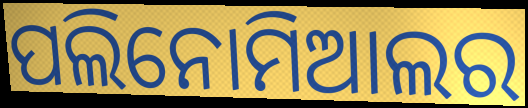
ପଲିନୋମିଆଲର